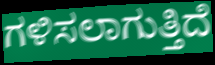
ಗಳಿಸಲಾಗುತ್ತಿದೆ